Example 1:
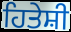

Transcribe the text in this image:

ਹਿਤੇਸ਼ੀ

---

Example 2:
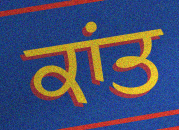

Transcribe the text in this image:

ਕਾਂਤ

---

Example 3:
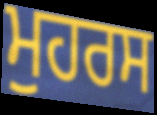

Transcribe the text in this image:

ਮੁਹਰਸ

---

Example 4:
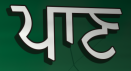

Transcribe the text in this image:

ਪਾਣ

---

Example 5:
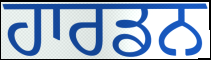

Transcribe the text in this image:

ਹਾਰਡਨ